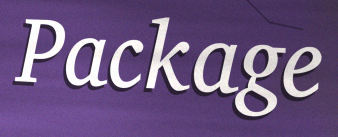
Package